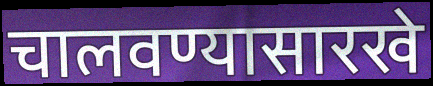
चालवण्यासारखे